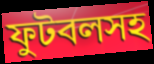
ফুটবলসহ